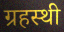
ग्रहस्थी